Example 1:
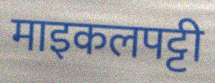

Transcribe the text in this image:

माइकलपट्टी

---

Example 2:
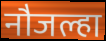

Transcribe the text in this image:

नौजल्हा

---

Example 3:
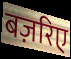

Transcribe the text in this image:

बज़रिए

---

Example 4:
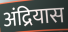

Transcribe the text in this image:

अंद्रियास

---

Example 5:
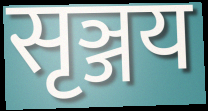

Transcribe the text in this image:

सृञ्जय